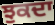
ਝੁਕਦਾ